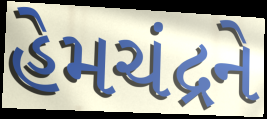
હેમચંદ્રને